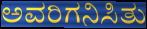
ಅವರಿಗನಿಸಿತು